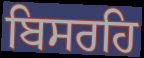
ਬਿਸਰਹਿ